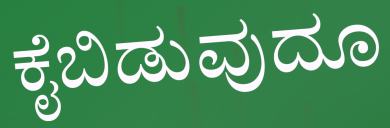
ಕೈಬಿಡುವುದೂ